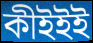
কীইইই